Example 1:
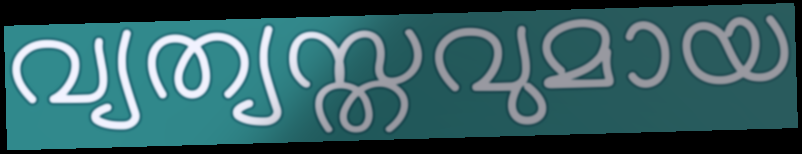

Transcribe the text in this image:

വ്യത്യസ്തവുമായ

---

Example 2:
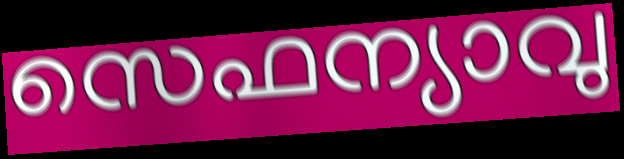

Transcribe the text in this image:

സെഫന്യാവു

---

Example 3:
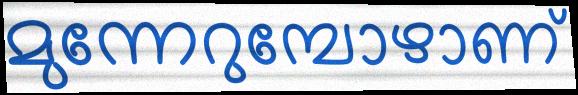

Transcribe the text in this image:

മുന്നേറുമ്പോഴാണ്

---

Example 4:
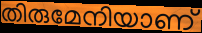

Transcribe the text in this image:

തിരുമേനിയാണ്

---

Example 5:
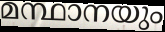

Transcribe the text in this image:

മന്ഥാനയും